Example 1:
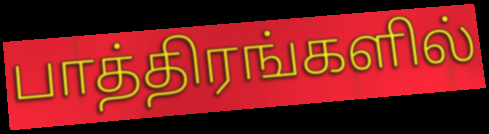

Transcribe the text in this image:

பாத்திரங்களில்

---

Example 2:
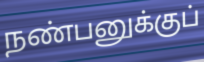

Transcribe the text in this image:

நண்பனுக்குப்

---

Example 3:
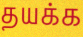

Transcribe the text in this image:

தயக்க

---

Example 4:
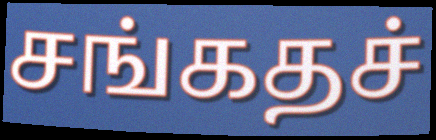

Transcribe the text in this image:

சங்கதச்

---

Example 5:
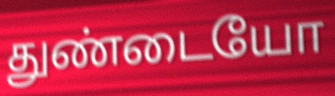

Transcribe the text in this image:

துண்டையோ